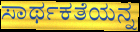
ಸಾರ್ಥಕತೆಯನ್ನ